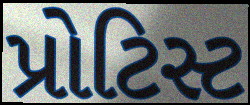
પ્રોટિસ્ટ